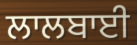
ਲਾਲਬਾਈ